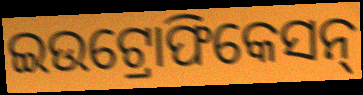
ଇଉଟ୍ରୋଫିକେସନ୍